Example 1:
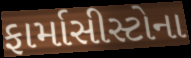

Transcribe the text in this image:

ફાર્માસીસ્ટોના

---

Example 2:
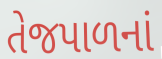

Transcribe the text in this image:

તેજપાળનાં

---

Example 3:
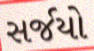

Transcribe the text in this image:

સર્જયો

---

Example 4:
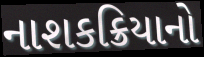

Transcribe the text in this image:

નાશકક્રિયાનો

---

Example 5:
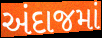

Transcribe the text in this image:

અંદાજમાં